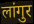
लांगुर